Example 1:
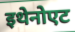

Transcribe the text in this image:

इथेनोएट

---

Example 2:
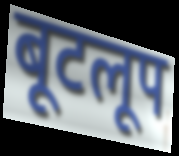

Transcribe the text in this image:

बूटलूप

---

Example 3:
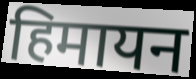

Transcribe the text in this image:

हिमायन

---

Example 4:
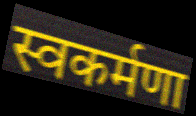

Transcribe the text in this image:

स्वकर्मणा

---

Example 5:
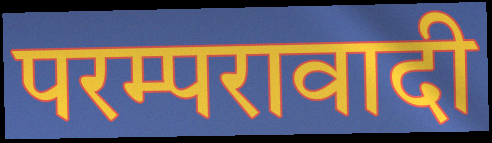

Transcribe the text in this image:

परम्परावादी